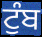
ਟੁੰਬ